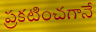
ప్రకటించగానే